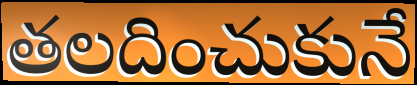
తలదించుకునే